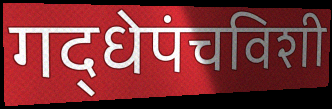
गद्धेपंचविशी